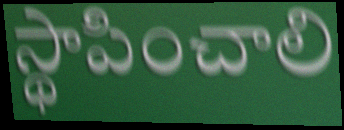
స్థాపించాలి